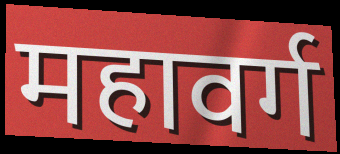
महावर्ग